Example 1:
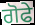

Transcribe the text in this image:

ਗੋਫੇ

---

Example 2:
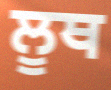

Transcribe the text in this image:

ਲੂਥ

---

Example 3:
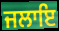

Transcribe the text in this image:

ਜਲਾਇ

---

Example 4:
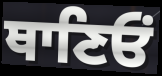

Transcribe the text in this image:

ਥਾਣਿਓਂ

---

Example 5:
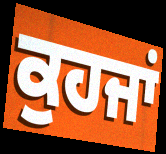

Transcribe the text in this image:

ਕੁਹਜਾਂ